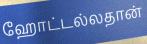
ஹோட்டல்லதான்